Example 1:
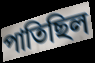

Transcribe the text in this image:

পাতিছিল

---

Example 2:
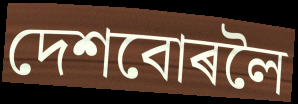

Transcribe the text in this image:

দেশবোৰলৈ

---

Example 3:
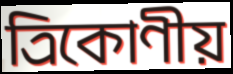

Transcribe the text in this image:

ত্ৰিকোণীয়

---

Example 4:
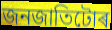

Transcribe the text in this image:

জনজাতিটোৰ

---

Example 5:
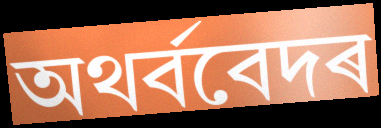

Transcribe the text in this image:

অথৰ্ববেদৰ